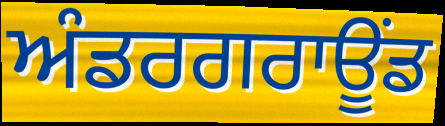
ਅੰਡਰਗਰਾਊਂਡ